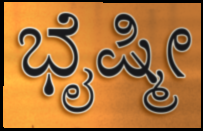
ಭೈಷ್ಮೀ